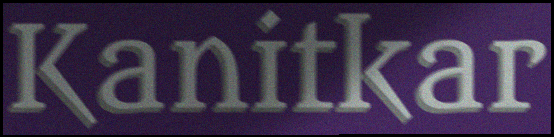
Kanitkar